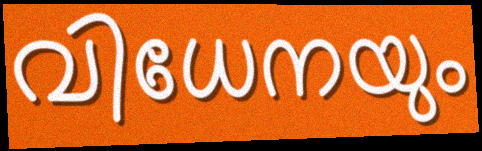
വിധേനയും